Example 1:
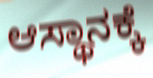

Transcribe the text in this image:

ಆಸ್ಥಾನಕ್ಕೆ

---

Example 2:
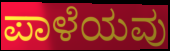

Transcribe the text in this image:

ಪಾಳೆಯವು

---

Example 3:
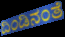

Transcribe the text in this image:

ದಿಂಡಿನಂತೆ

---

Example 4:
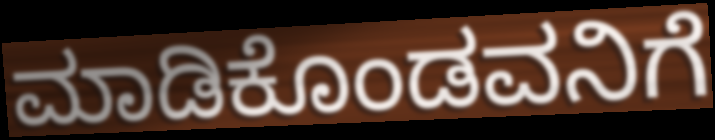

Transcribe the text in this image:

ಮಾಡಿಕೊಂಡವನಿಗೆ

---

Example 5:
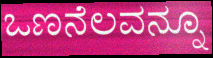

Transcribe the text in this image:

ಒಣನೆಲವನ್ನೂ